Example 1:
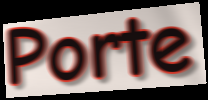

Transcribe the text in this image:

Porte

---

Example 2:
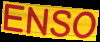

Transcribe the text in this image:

ENSO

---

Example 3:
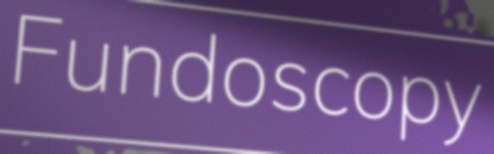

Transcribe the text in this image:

Fundoscopy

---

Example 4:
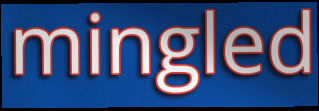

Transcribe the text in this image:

mingled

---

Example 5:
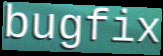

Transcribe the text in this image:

bugfix